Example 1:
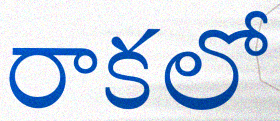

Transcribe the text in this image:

రాకలో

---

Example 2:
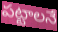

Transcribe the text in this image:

పట్టాలనే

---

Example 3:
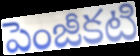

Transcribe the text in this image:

పెంజీకటి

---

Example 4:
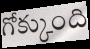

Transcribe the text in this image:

గోక్కుంది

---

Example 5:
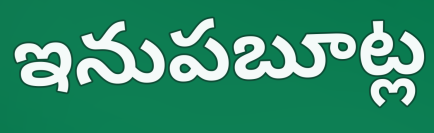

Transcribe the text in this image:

ఇనుపబూట్ల